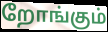
றோங்கும்